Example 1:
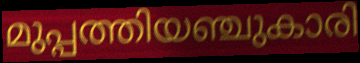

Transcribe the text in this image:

മുപ്പത്തിയഞ്ചുകാരി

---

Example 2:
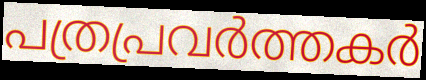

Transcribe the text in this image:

പത്രപ്രവർത്തകർ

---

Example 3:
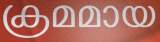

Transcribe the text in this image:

ക്രമമായ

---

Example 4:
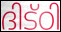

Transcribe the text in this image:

ദിട്ഠി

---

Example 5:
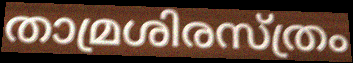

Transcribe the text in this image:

താമ്രശിരസ്ത്രം